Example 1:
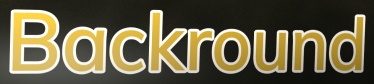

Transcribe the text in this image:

Backround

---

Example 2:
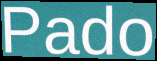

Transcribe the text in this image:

Pado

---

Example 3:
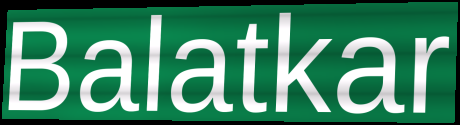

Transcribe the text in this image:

Balatkar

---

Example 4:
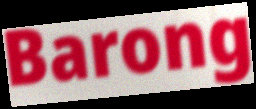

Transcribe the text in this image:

Barong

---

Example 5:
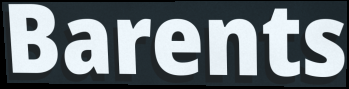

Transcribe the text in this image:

Barents